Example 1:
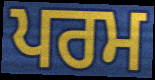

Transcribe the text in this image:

ਪਰਮ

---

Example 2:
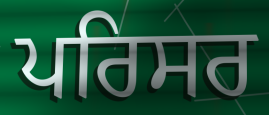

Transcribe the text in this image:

ਪਰਿਸਰ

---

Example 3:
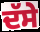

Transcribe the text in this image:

ਦੱਸੇ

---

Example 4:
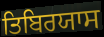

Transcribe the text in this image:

ਤਿਬਿਰਯਾਸ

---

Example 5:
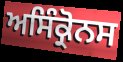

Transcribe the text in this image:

ਅਸਿੰਕ੍ਰੋਨਸ